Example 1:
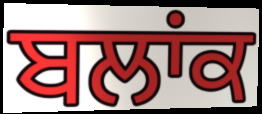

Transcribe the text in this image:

ਬਲਾਂਕ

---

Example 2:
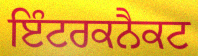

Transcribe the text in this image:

ਇੰਟਰਕਨੈਕਟ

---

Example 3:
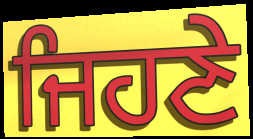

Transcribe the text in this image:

ਜਿਹਣੇ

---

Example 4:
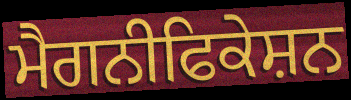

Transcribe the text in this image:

ਮੈਗਨੀਫਿਕੇਸ਼ਨ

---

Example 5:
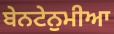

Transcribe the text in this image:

ਬੇਨਟੇਨੁਮੀਆ